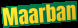
Maarban